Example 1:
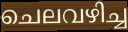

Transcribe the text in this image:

ചെലവഴിച്ച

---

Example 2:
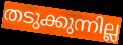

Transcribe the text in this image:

തടുക്കുന്നില്ല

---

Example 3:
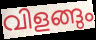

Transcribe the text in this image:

വിളങ്ങും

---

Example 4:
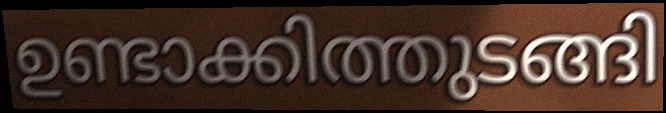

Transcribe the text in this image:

ഉണ്ടാക്കിത്തുടങ്ങി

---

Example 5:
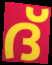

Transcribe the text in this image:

ദ്